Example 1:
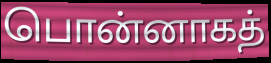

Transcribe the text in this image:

பொன்னாகத்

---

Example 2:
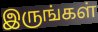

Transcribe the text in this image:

இருங்கள்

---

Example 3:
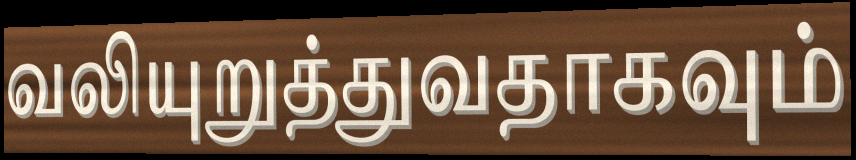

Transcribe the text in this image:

வலியுறுத்துவதாகவும்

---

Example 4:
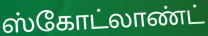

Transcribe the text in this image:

ஸ்கோட்லாண்ட்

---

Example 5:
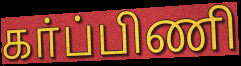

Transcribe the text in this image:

கர்ப்பிணி